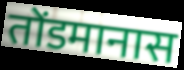
तोंडमानास